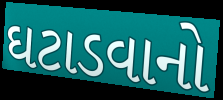
ઘટાડવાનો